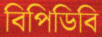
বিপিডিবি